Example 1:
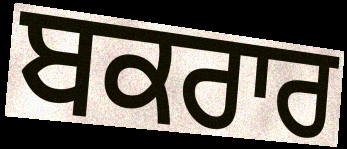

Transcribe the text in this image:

ਬਕਰਾਰ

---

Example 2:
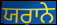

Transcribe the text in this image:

ਯਰਾਨੇ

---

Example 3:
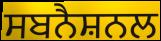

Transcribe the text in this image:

ਸਬਨੈਸ਼ਨਲ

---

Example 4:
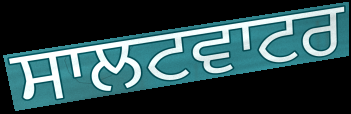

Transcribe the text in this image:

ਸਾਲਟਵਾਟਰ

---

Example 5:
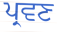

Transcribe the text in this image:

ਪ੍ਰਵਣ